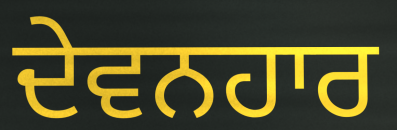
ਦੇਵਨਹਾਰ